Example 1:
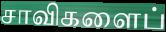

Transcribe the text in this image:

சாவிகளைப்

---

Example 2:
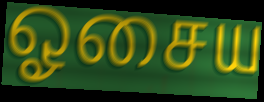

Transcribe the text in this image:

ஓசைய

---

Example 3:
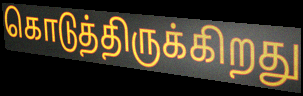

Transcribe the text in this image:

கொடுத்திருக்கிறது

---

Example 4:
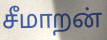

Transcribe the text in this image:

சீமாறன்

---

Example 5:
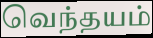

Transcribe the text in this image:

வெந்தயம்